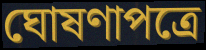
ঘোষণাপত্রে